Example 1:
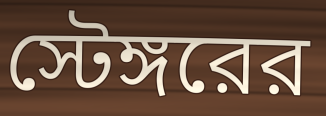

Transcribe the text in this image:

স্টেঙ্গরের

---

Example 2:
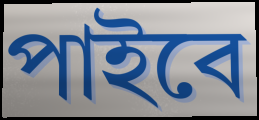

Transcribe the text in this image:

পাইবে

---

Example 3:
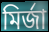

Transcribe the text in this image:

মির্জা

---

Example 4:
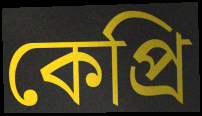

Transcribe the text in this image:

কেপ্রি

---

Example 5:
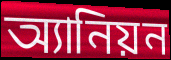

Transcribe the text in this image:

অ্যানিয়ন